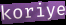
koriye